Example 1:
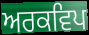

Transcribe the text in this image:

ਅਰਕਵਿਪ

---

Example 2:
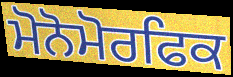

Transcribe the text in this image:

ਮੋਨੋਮੋਰਫਿਕ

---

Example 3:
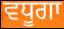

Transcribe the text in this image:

ਵਧੂਗਾ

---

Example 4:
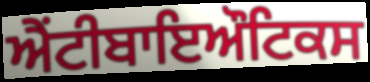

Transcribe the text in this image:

ਐਂਟੀਬਾਇਔਟਿਕਸ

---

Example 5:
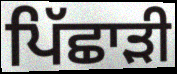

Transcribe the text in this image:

ਪਿੱਛਾੜੀ